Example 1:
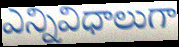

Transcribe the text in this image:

ఎన్నివిధాలుగా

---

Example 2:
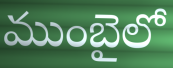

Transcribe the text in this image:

ముంబైలో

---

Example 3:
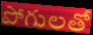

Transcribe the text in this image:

పోగులతో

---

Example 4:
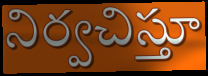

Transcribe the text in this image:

నిర్వచిస్తూ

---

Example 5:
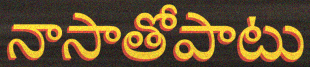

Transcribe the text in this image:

నాసాతోపాటు